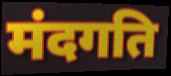
मंदगति